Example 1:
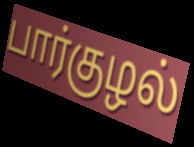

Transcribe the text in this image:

பார்குழல்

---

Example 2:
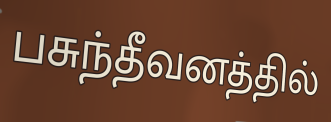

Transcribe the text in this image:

பசுந்தீவனத்தில்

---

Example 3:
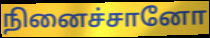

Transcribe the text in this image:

நினைச்சானோ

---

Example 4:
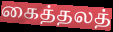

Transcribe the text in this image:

கைத்தலத்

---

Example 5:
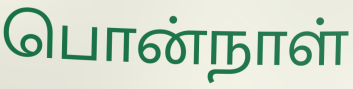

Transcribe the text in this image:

பொன்நாள்